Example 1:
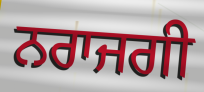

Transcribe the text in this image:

ਨਰਾਜਗੀ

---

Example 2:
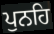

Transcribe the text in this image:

ਪੁਨਹਿ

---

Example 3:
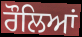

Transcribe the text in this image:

ਰੌਲਿਆਂ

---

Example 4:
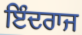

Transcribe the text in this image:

ਇੰਦਰਾਜ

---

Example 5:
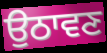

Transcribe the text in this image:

ਉਠਾਵਣ